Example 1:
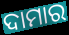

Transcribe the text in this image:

ଦାମାର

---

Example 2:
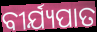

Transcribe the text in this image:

ବୀର୍ଯ୍ୟପାତ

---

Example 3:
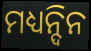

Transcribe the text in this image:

ମଧ୍ୟନ୍ଦିନ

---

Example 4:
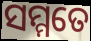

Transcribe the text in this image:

ସମ୍ମତେ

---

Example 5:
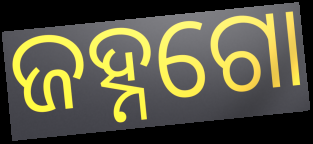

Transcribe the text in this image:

ଜହ୍ନଗୋ